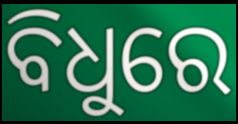
ବିଧୁରେ